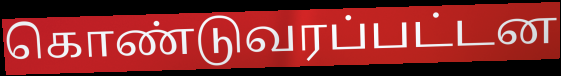
கொண்டுவரப்பட்டன